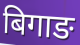
बिगाङ